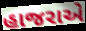
હાજરાએ